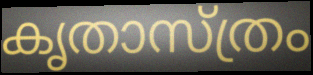
കൃതാസ്ത്രം